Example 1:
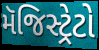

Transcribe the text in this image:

મૅજિસ્ટ્રેટો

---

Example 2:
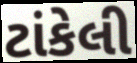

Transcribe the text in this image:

ટાંકેલી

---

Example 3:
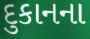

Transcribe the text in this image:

દુકાનના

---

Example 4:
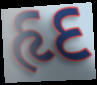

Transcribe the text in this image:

હૃદ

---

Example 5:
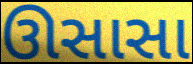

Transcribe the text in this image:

ઊસાસા